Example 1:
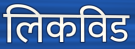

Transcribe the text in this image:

लिकविड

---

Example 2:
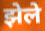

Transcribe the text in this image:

झेले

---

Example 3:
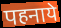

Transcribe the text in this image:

पहनाये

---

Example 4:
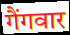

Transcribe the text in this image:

गैंगवार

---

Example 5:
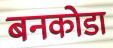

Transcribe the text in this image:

बनकोडा